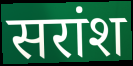
सरांश